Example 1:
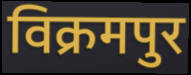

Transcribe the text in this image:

विक्रमपुर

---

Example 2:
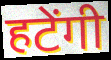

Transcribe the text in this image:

हटेंगी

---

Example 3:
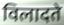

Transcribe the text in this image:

विलादते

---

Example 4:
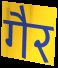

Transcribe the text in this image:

गैर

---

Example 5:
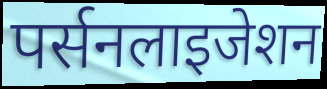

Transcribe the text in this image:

पर्सनलाइजेशन